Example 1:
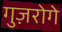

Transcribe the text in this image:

गुज़रोगे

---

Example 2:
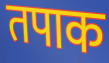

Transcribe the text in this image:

तपाक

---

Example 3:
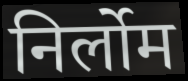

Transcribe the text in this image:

निर्लोम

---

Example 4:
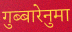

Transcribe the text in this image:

गुब्बारेनुमा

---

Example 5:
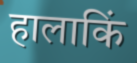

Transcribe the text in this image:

हालाकिं